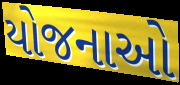
યોજનાઓ